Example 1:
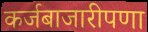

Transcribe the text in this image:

कर्जबाजारीपणा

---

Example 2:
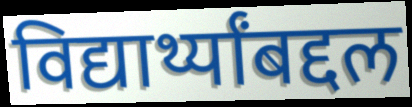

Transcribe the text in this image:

विद्यार्थ्यांबद्दल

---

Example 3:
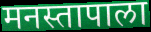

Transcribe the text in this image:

मनस्तापाला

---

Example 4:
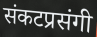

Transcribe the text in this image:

संकटप्रसंगी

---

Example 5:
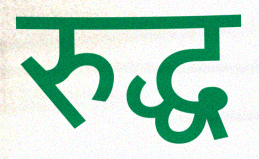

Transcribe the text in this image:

रुद्ध